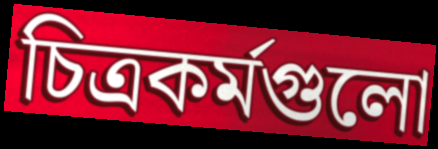
চিত্রকর্মগুলো